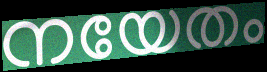
നയേതം